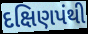
દક્ષિણપંથી